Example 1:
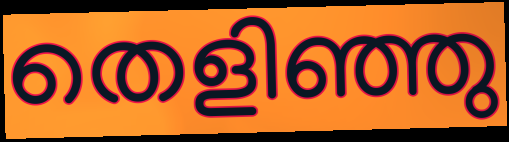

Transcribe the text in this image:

തെളിഞ്ഞു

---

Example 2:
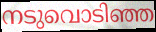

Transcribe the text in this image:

നടുവൊടിഞ്ഞ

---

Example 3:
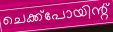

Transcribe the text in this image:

ചെക്ക്പോയിന്റ്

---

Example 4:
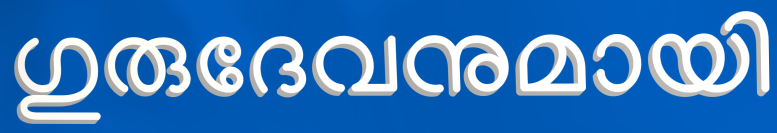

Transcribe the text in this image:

ഗുരുദേവനുമായി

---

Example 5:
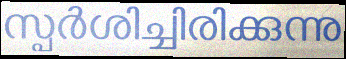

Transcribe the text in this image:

സ്പർശിച്ചിരിക്കുന്നു